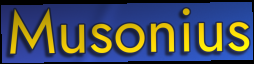
Musonius